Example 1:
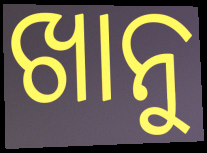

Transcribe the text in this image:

ଖାନୁ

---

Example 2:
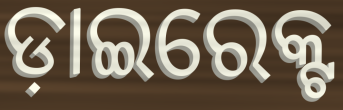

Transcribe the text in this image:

ଡ଼ାଇରେକ୍ଟ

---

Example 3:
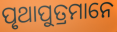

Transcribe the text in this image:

ପୃଥାପୁତ୍ରମାନେ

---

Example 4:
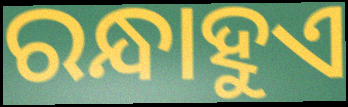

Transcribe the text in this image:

ରନ୍ଧାହୁଏ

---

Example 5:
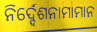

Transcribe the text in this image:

ନିର୍ଦ୍ଦେଶନାମାମାନ